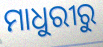
ମାଧୁରୀରୁ